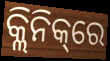
କ୍ଲିନିକ୍‌ରେ